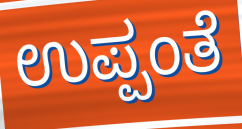
ಉಪ್ಪಂತೆ